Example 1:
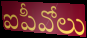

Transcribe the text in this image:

ఐపీవోలు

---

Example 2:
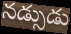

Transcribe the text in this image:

నడ్సుడు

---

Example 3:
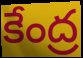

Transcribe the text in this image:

కేంద్ర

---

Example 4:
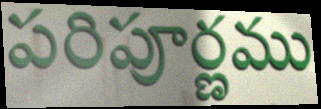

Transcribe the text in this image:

పరిపూర్ణము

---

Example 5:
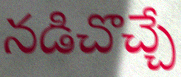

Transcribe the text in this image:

నడిచొచ్చే